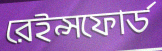
রেইন্সফোর্ড